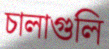
চালাগুলি